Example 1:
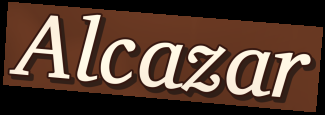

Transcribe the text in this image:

Alcazar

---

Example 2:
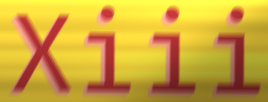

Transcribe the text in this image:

Xiii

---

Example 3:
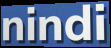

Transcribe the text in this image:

nindi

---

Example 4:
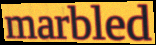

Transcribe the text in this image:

marbled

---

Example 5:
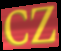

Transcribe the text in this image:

CZ